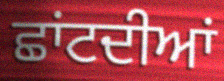
ਛਾਂਟਦੀਆਂ